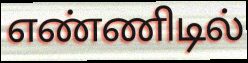
எண்ணிடில்